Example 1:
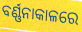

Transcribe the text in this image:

ବର୍ଣ୍ଣନାକାଳରେ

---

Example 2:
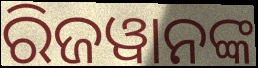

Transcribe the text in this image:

ରିଜୱାନଙ୍କ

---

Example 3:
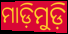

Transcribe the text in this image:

ମାଡ଼ିମୁଡ଼ି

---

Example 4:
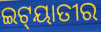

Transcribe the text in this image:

ଇଟ୍‍ୟାତୀର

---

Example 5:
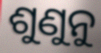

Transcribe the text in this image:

ଶୁଣୁନୁ